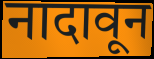
नादावून